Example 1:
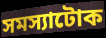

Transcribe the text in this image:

সমস্যাটোক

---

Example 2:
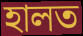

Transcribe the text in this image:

হালত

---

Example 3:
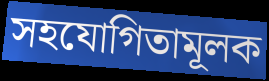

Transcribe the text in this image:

সহযোগিতামূলক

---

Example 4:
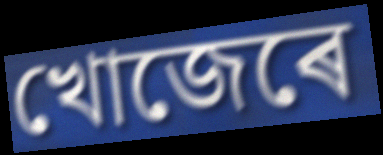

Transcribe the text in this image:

খোজেৰে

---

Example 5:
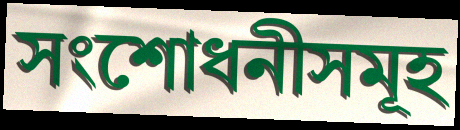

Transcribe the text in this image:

সংশোধনীসমূহ